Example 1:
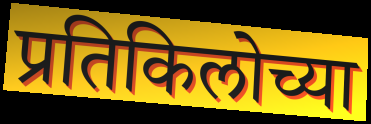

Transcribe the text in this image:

प्रतिकिलोच्या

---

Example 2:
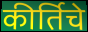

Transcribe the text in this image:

कीर्तिचे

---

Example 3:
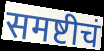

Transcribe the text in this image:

समष्टीचं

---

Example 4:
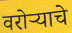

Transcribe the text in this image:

वरोऱ्याचे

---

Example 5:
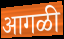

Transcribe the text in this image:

आगळी